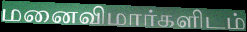
மனைவிமார்களிடம்